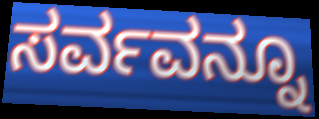
ಸರ್ವವನ್ನೂ